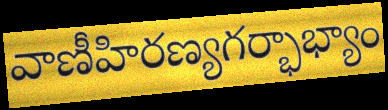
వాణీహిరణ్యగర్భాభ్యాం